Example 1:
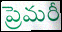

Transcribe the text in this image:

ప్రెమరీ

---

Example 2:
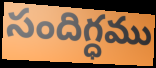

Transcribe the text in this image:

సందిగ్ధము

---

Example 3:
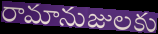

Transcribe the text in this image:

రామానుజులకు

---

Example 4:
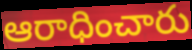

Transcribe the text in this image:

ఆరాధించారు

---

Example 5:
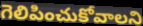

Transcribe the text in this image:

గెలిపించుకోవాలని